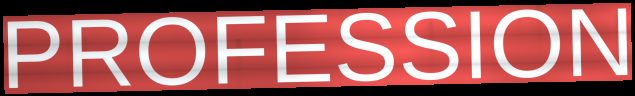
PROFESSION